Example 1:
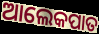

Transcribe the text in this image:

ଆଲେକପାତ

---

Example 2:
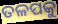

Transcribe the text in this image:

ତଳପକୁ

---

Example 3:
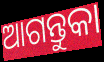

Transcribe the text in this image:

ଆଗନ୍ତୁକା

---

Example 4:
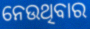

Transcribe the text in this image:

ନେଉଥିବାର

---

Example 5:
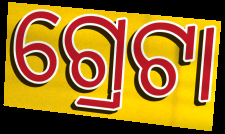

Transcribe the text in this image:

ଗ୍ରେଟା